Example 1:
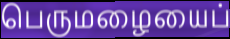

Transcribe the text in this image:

பெருமழையைப்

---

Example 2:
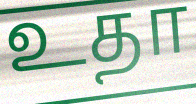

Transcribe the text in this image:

உதா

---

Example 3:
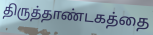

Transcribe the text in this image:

திருத்தாண்டகத்தை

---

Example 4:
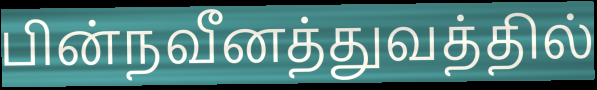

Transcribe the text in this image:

பின்நவீனத்துவத்தில்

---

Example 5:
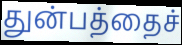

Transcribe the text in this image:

துன்பத்தைச்